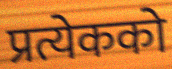
प्रत्येकको